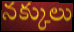
నక్కులు